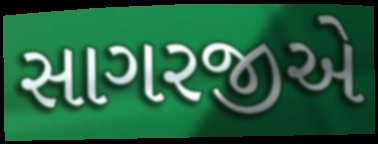
સાગરજીએ